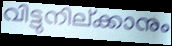
വിട്ടുനില്ക്കാനും